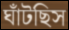
ঘাঁটছিস